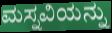
ಮಸ್ನವಿಯನ್ನು